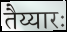
तैय्यारः